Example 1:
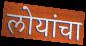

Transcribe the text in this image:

लोयांचा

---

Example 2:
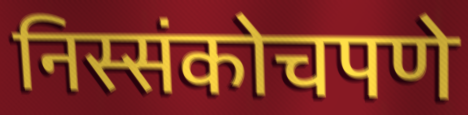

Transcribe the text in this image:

निस्संकोचपणे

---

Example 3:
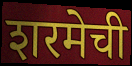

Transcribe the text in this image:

शरमेची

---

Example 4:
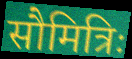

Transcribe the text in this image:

सौमित्रिः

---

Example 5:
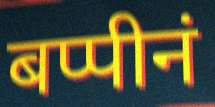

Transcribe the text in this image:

बप्पीनं